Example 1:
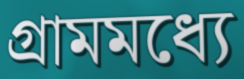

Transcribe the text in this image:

গ্রামমধ্যে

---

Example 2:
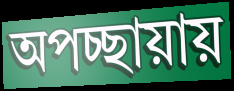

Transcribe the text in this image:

অপচ্ছায়ায়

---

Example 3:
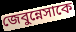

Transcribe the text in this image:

জেবুন্নেসাকে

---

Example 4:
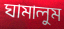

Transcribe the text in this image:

ঘামালুম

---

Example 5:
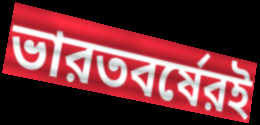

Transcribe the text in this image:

ভারতবর্ষেরই